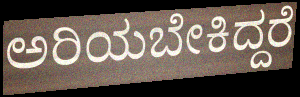
ಅರಿಯಬೇಕಿದ್ದರೆ